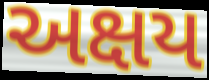
અક્ષય